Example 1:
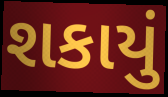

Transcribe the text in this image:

શકાયું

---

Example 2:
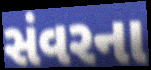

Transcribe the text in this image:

સંવરના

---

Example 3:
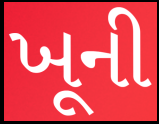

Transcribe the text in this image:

ખૂની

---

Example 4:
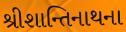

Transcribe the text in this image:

શ્રીશાન્તિનાથના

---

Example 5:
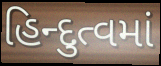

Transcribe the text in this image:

હિન્દુત્વમાં